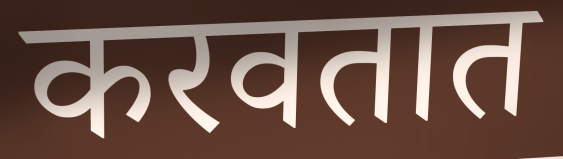
करवतात